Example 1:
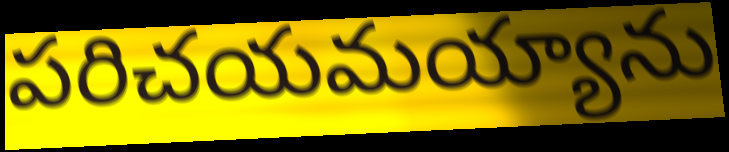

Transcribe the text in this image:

పరిచయమయ్యాను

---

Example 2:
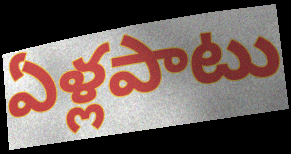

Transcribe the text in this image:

ఏళ్లపాటు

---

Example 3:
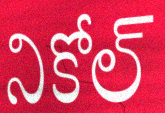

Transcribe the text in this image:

నికోల్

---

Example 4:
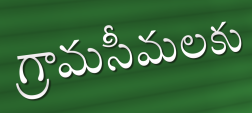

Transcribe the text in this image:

గ్రామసీమలకు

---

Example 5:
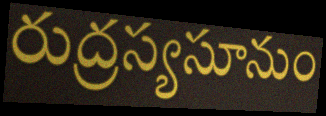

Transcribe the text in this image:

రుద్రస్యసూనుం